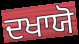
ਦਖਾਯੋ